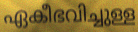
ഏകീഭവിച്ചുള്ള